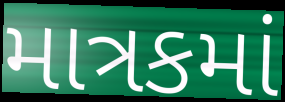
માત્રકમાં